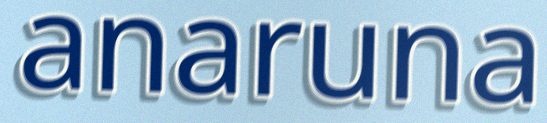
anaruna